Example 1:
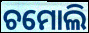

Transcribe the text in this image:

ଚମୋଲି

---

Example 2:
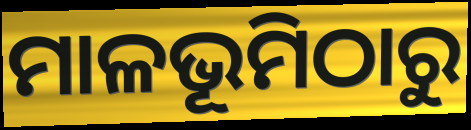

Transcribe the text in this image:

ମାଳଭୂମିଠାରୁ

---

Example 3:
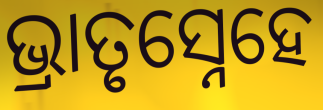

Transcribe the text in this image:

ଭ୍ରାତୃସ୍ନେହେ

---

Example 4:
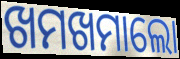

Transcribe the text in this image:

ଖମଖମାଲୋ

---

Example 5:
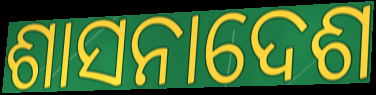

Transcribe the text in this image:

ଶାସନାଦେଶ